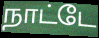
நாட்டே